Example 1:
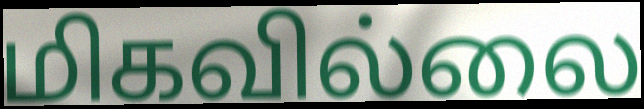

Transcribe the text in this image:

மிகவில்லை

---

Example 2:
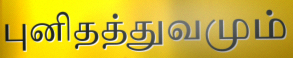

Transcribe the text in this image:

புனிதத்துவமும்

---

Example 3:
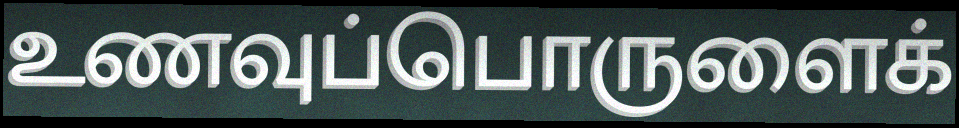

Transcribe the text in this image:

உணவுப்பொருளைக்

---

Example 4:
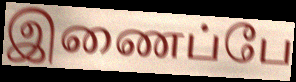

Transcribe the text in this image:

இணைப்பே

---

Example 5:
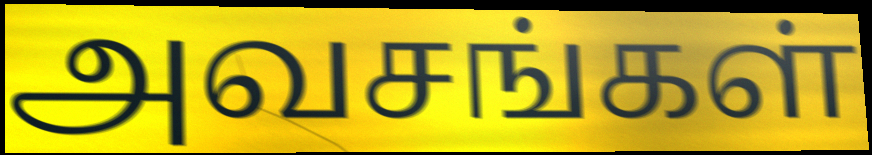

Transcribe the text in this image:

அவசங்கள்